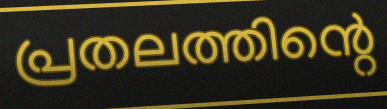
പ്രതലത്തിന്റെ